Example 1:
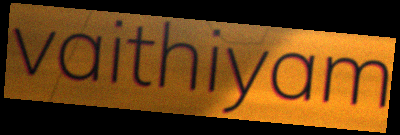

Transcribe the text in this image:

vaithiyam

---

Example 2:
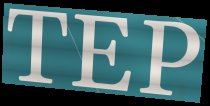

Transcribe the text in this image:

TEP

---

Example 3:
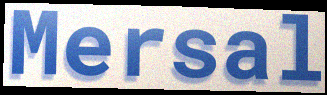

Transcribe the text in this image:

Mersal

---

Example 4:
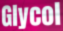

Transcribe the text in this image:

Glycol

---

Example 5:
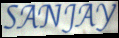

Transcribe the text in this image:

SANJAY